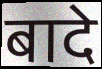
बादे